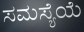
ಸಮಸ್ಯೆಯೆ